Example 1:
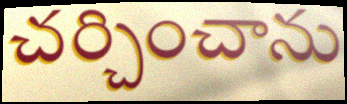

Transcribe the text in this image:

చర్చించాను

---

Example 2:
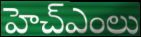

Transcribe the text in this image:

హెచ్ఎంలు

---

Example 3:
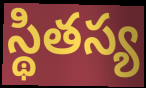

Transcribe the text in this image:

స్థితస్య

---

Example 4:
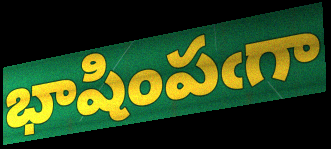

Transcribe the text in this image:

భాషింపఁగా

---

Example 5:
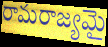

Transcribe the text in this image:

రామరాజ్యమై